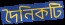
দৈনিকটি